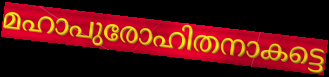
മഹാപുരോഹിതനാകട്ടെ